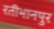
रतीभानपुर